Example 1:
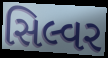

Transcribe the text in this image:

સિલ્વર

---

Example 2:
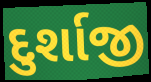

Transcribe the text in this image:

દુર્શાજી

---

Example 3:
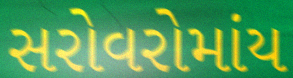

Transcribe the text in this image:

સરોવરોમાંય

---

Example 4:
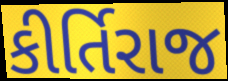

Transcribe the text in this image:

કીર્તિરાજ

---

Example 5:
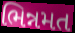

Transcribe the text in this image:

ભિન્નમત